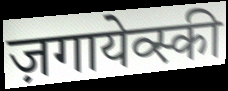
ज़गायेव्स्की